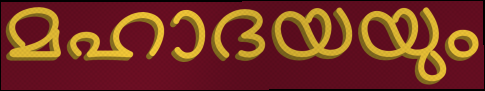
മഹാദയയും